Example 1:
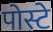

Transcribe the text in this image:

पोस्टे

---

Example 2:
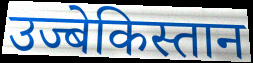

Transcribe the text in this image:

उज्बेकिस्तान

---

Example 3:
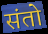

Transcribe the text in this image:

संतो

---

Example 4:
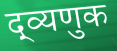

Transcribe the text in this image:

द्व्यणुक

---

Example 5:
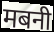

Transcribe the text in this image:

मबनी